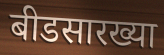
बीडसारख्या